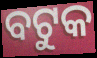
ବଟୁକ